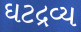
ઘટદ્રવ્ય